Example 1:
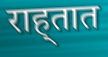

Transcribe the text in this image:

राह्तात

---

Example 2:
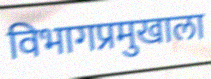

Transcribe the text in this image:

विभागप्रमुखाला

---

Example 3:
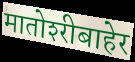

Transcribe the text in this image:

मातोश्रीबाहेर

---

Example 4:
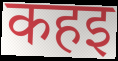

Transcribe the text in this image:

कहइ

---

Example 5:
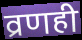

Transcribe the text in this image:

व्रणही